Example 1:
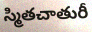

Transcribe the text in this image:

స్మితచాతురీ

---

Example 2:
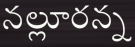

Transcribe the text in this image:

నల్లూరన్న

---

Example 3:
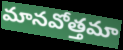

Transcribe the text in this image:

మానవోత్తమా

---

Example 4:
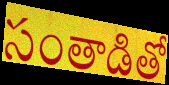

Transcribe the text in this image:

సంతాడితో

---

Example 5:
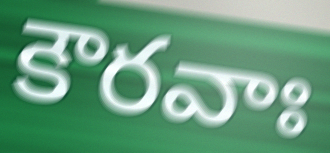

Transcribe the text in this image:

కౌరవాః